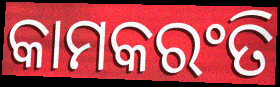
କାମକରଂତି